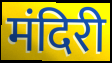
मंदिरी